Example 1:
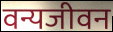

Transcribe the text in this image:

वन्यजीवन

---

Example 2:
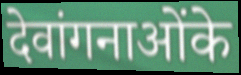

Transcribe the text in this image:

देवांगनाओंके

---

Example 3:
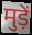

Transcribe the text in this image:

मुड़ें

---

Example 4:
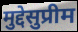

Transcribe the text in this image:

मुद्देसुप्रीम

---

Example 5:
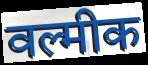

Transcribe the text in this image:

वल्मीक